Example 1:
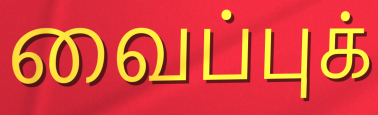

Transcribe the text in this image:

வைப்புக்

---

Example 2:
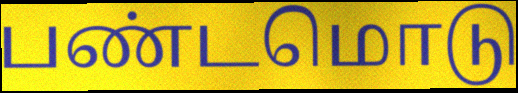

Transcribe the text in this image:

பண்டமொடு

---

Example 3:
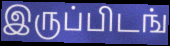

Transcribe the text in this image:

இருப்பிடங்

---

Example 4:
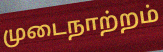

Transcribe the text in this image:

முடைநாற்றம்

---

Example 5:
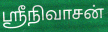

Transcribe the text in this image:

ஸ்ரீநிவாசன்